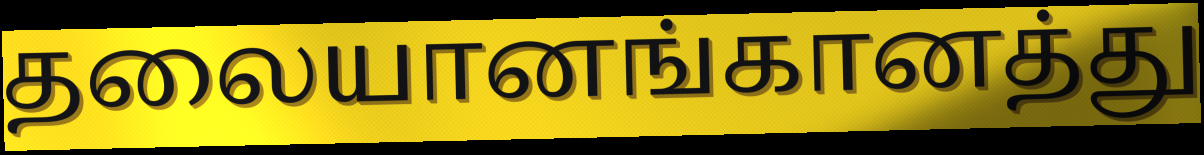
தலையானங்கானத்து